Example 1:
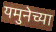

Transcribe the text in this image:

यमुनेच्या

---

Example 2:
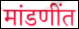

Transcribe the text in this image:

मांडणींत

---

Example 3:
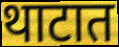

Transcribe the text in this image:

थाटात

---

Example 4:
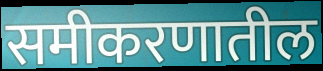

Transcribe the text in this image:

समीकरणातील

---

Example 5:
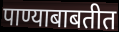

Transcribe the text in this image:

पाण्याबाबतीत